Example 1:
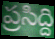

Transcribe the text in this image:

ప్రసిద్ది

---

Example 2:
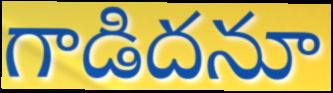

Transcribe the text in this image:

గాడిదనూ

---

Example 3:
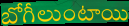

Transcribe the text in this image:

బోగీలుంటాయి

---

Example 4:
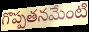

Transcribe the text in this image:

గొప్పతనమేంటి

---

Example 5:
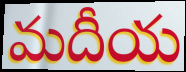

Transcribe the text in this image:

మదీయ